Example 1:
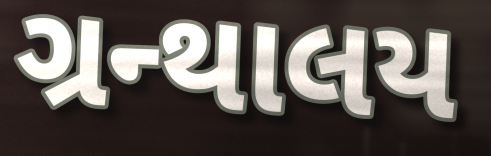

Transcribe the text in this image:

ગ્રન્થાલય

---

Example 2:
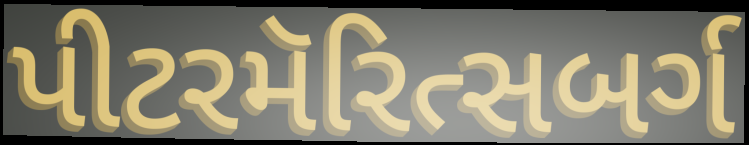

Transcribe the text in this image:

પીટરમૅરિત્સબર્ગ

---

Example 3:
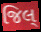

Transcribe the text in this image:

જિલ્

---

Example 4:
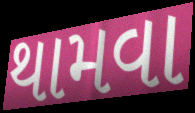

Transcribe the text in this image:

થામવા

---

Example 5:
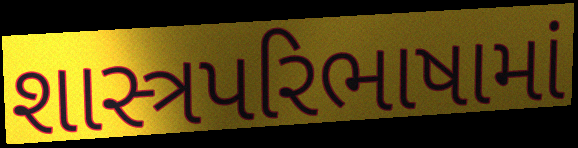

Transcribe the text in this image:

શાસ્ત્રપરિભાષામાં